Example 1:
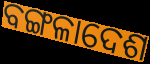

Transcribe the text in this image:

ବଙ୍ଗଳାଦେଶ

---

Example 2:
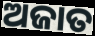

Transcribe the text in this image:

ଅଜାତ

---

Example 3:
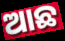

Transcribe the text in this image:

ଆଛ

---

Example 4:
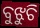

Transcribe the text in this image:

ବୁଝୁଚି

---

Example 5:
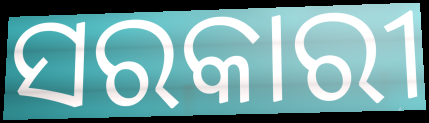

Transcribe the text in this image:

ସରକାରୀ